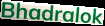
Bhadralok